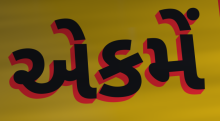
એકમેં